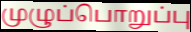
முழுப்பொறுப்பு